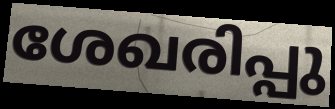
ശേഖരിപ്പു